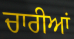
ਚਾਰੀਆਂ